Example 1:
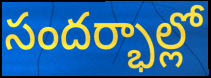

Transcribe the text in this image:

సందర్భాల్లో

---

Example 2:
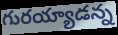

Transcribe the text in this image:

గురయ్యాడన్న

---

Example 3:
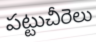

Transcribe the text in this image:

పట్టుచీరెలు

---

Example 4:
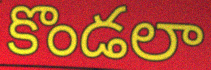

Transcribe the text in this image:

కొండలా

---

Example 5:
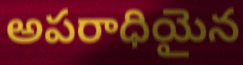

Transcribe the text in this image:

అపరాధియైన